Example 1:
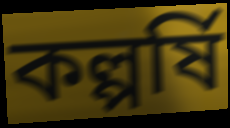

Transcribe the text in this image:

কল্পর্ষি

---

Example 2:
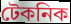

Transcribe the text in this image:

টেকনিক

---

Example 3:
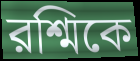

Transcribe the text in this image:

রশ্মিকে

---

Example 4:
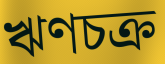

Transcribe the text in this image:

ঋণচক্র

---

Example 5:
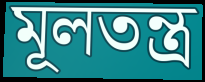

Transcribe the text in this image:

মূলতন্ত্র